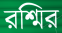
রশ্মির